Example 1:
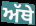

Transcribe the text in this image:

ਅੱਥੇ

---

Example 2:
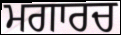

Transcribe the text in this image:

ਮਗਾਰਚ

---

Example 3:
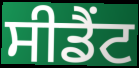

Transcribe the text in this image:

ਸੀਡੈਂਟ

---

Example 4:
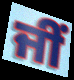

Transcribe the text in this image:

ਜੀਂ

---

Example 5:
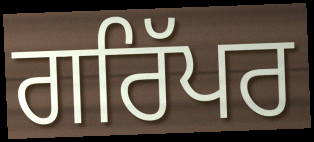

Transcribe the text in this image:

ਗਰਿੱਪਰ